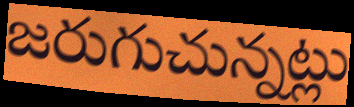
జరుగుచున్నట్లు